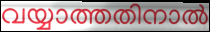
വയ്യാത്തതിനാൽ